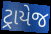
ટ્રાયેજ